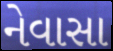
નેવાસા